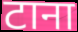
टाना